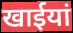
खाईयां